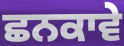
ਛਨਕਾਵੇ